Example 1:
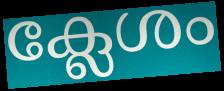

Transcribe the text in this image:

ക്ലേശം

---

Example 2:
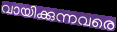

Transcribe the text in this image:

വായിക്കുന്നവരെ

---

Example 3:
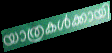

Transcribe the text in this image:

യാത്രകൾക്കായി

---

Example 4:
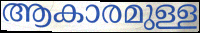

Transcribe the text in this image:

ആകാരമുള്ള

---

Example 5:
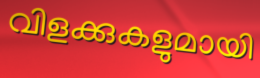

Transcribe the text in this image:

വിളക്കുകളുമായി